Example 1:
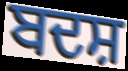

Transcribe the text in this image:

ਬਦਸ਼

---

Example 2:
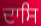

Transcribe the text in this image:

ਦਾਸਿ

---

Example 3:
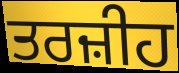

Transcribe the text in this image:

ਤਰਜ਼ੀਹ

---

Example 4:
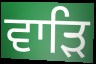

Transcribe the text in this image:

ਵਾੜਿ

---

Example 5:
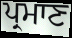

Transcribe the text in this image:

ਪ੍ਰਮਾਣ